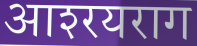
आश्रयराग